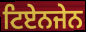
ਟਿਏਨਜੇਨ